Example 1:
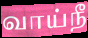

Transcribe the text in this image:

வாய்நீ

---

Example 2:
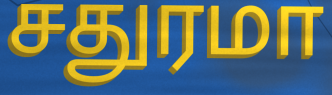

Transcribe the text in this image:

சதுரமா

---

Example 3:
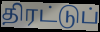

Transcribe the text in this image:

திரட்டுப்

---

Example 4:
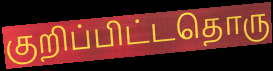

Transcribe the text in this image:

குறிப்பிட்டதொரு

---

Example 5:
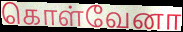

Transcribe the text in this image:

கொள்வேனா